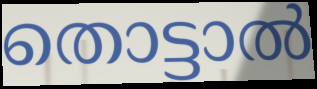
തൊട്ടാൽ